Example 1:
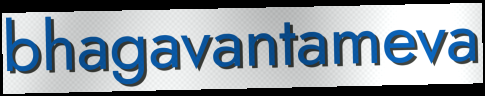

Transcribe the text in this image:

bhagavantameva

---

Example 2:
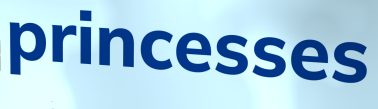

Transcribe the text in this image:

princesses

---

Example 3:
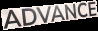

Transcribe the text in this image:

ADVANCE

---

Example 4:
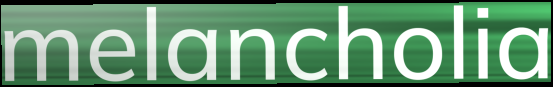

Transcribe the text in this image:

melancholia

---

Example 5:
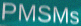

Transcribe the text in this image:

PMSMs